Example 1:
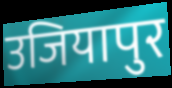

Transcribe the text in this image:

उजियापुर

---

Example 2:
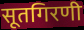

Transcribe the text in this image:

सूतगिरणी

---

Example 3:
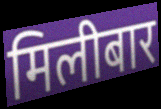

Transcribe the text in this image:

मिलीबार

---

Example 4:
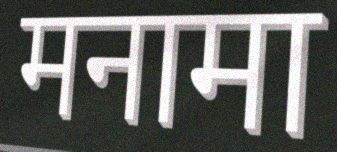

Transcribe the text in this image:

मनामा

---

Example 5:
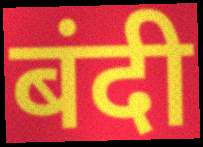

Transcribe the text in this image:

बंदी